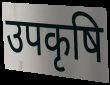
उपकृषि